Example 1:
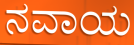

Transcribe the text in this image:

ನವಾಯ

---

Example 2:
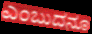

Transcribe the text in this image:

ಎಂಬುದನೂ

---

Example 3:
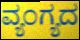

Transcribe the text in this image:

ವ್ಯಂಗ್ಯದ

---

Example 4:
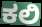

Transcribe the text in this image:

ಕಲಿ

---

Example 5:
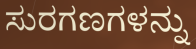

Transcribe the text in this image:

ಸುರಗಣಗಳನ್ನು